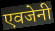
एवजेनी